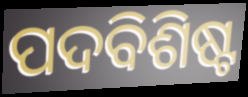
ପଦବିଶିଷ୍ଟ